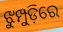
ଝୁମ୍ପୁଡ଼ିରେ